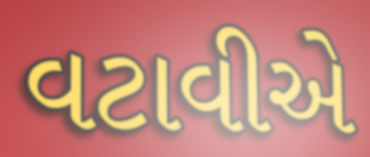
વટાવીએ